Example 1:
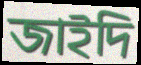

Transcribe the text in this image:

জাইদি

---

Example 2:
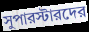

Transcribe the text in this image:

সুপারস্টারদের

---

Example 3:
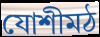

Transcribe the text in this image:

যোশীমঠ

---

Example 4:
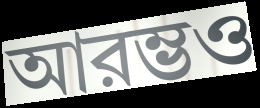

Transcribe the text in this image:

আরম্ভও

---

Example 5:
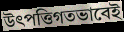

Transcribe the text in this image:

উৎপত্তিগতভাবেই